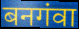
बनगंवा